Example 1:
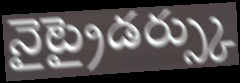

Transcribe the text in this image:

నైట్రైడర్స్కు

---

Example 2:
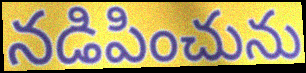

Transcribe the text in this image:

నడిపించును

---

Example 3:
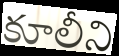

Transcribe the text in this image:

కూలీని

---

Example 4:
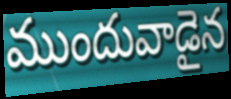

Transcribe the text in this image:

ముందువాడైన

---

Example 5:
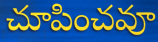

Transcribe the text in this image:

చూపించవూ